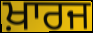
ਖ਼ਾਰਜ